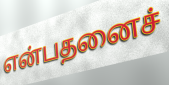
என்பதனைச்